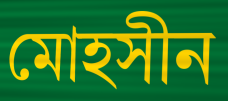
মোহসীন